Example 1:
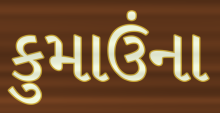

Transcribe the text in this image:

કુમાઉંના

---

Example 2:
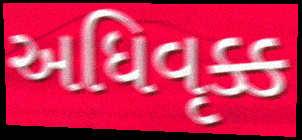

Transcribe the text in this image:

અધિવૃક્ક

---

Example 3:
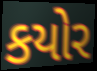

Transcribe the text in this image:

કયોર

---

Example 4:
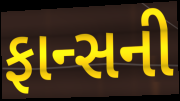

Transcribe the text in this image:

ફાન્સની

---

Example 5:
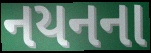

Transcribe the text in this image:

નયનના